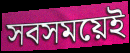
সবসময়েই